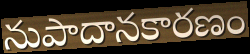
నుపాదానకారణం